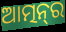
ଆତ୍ମନ୍‌ର